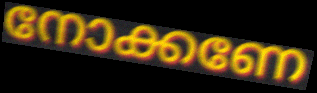
നോക്കണേ